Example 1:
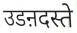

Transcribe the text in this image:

उडऩदस्ते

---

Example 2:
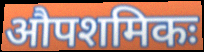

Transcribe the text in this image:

औपशमिकः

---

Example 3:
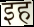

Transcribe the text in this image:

इह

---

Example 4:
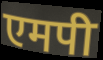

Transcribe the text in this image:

एमपी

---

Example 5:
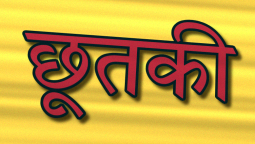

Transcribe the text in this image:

छूतकी